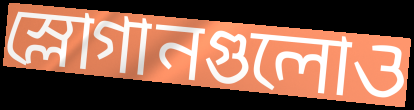
স্লোগানগুলোও